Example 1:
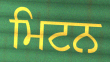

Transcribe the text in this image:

ਮਿਟਨ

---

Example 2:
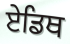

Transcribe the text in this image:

ਏਡਿਥ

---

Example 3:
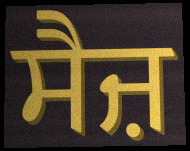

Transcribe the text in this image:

ਸੈਜ਼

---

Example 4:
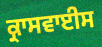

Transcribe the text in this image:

ਕ੍ਰਾਸਵਾਈਸ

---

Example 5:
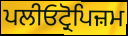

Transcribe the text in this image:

ਪਲੀਓਟ੍ਰੋਪਿਜ਼ਮ